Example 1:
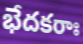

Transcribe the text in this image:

భేదకరాః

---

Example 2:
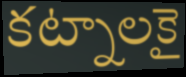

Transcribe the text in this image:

కట్నాలకై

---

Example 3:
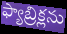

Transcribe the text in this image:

ఫ్యాబ్రిక్లను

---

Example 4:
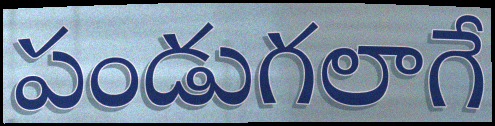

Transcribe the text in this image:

పండుగలాగే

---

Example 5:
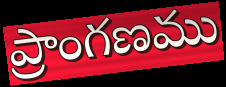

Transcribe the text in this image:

ప్రాంగణము